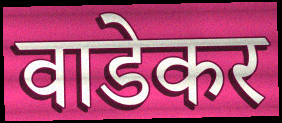
वाडेकर